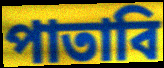
পাতাবি